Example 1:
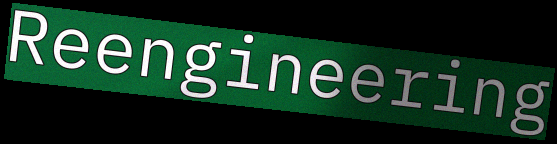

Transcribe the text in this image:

Reengineering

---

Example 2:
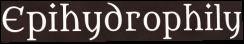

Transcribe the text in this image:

Epihydrophily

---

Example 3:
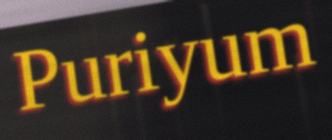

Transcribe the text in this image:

Puriyum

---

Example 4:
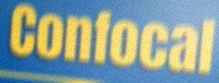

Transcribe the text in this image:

Confocal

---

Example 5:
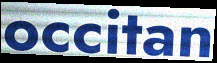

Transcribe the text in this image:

occitan